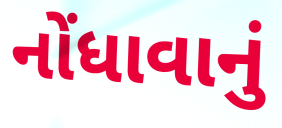
નોંધાવાનું